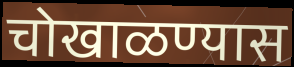
चोखाळण्यास